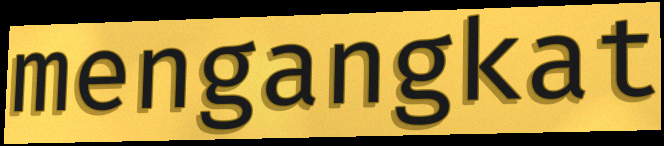
mengangkat